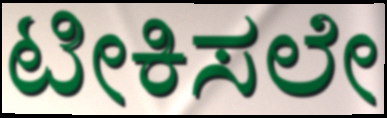
ಟೀಕಿಸಲೇ